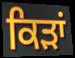
ਕਿੜਾਂ